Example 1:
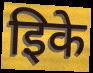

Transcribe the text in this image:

इिके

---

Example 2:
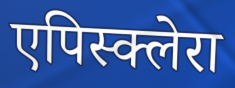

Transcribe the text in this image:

एपिस्क्लेरा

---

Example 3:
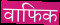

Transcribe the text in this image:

वाफिक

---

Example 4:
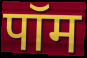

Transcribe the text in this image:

पॉम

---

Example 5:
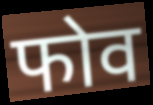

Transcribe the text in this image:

फोव